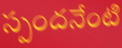
స్పందనేంటి